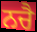
ਨਚੈ